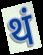
थं